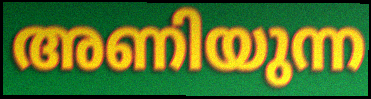
അണിയുന്ന